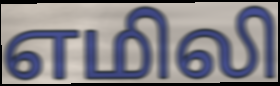
எமிலி